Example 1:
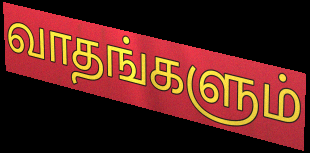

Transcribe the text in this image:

வாதங்களும்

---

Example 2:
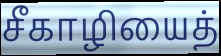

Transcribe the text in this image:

சீகாழியைத்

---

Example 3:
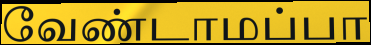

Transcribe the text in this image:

வேண்டாமப்பா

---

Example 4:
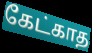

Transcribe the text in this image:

கேட்காத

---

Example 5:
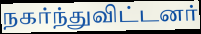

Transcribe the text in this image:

நகர்ந்துவிட்டனர்